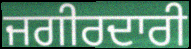
ਜਗੀਰਦਾਰੀ